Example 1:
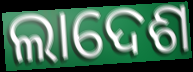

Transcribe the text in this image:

ଲାଦେଶ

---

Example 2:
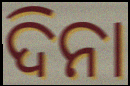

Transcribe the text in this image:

ଦିନା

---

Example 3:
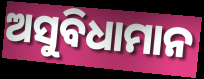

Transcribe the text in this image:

ଅସୁବିଧାମାନ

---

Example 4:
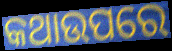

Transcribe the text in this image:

କଥାଉପରେ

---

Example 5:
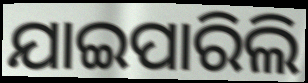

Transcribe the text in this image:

ଯାଇପାରିଲି